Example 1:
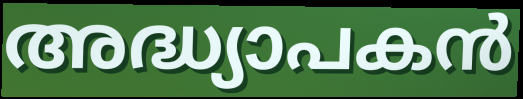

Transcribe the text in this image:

അദ്ധ്യാപകൻ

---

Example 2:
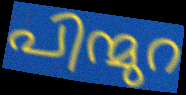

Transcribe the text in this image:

പിന്മുറ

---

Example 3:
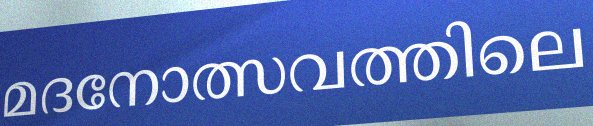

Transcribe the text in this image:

മദനോത്സവത്തിലെ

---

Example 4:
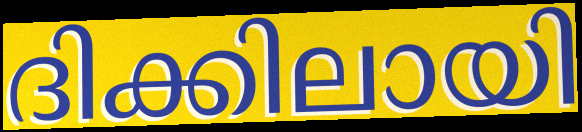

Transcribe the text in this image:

ദിക്കിലായി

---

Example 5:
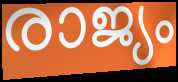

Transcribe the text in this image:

രാജ്യം